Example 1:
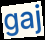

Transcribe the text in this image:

gaj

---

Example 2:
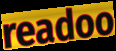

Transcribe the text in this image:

readoo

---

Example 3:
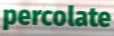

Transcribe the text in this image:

percolate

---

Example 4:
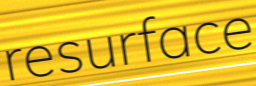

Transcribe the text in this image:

resurface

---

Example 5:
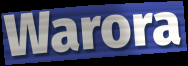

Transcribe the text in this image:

Warora